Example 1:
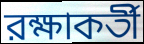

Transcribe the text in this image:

রক্ষাকর্তী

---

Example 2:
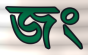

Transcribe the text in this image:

জং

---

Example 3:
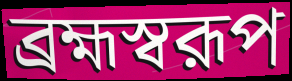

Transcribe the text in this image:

ব্রহ্মস্বরূপ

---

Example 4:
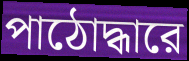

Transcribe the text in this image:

পাঠোদ্ধারে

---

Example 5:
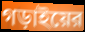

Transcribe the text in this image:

গড়াইয়ের